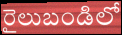
రైలుబండిలో